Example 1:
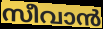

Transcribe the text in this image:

സീവാൻ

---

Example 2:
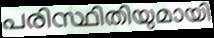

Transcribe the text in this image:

പരിസ്ഥിതിയുമായി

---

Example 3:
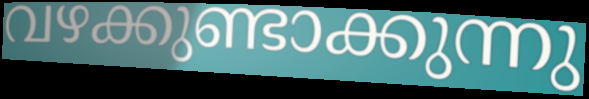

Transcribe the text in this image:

വഴക്കുണ്ടാക്കുന്നു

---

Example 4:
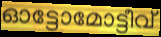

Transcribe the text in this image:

ഓട്ടോമോട്ടീവ്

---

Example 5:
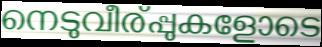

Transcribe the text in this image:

നെടുവീര്പ്പുകളോടെ